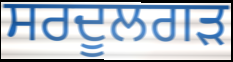
ਸਰਦੂਲਗੜ